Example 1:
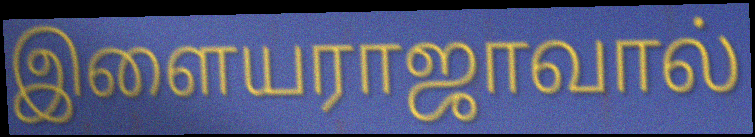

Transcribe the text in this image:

இளையராஜாவால்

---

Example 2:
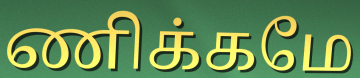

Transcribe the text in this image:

ணிக்கமே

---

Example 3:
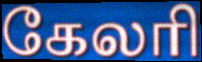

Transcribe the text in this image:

கேலரி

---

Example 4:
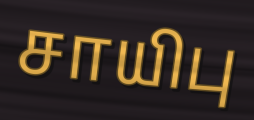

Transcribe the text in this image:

சாயிபு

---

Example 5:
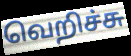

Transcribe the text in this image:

வெறிச்சு